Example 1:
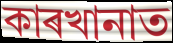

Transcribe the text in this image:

কাৰখানাত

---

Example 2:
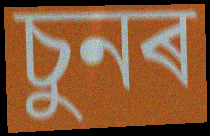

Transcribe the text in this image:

চুনৰ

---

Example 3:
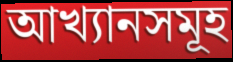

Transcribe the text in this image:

আখ্যানসমূহ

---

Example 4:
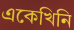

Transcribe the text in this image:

একেখিনি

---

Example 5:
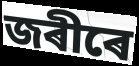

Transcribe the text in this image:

জৰীৰে